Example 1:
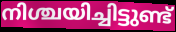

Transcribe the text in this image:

നിശ്ചയിച്ചിട്ടുണ്ട്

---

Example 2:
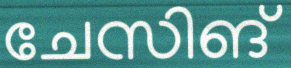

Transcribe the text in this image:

ചേസിങ്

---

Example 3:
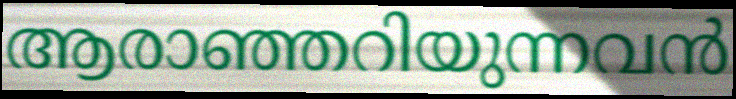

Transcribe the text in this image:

ആരാഞ്ഞറിയുന്നവൻ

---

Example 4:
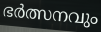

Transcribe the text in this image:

ഭർത്സനവും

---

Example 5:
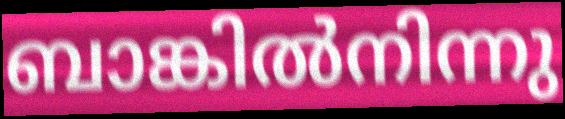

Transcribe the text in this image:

ബാങ്കിൽനിന്നു